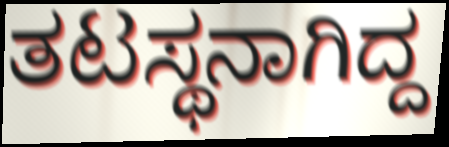
ತಟಸ್ಥನಾಗಿದ್ದ